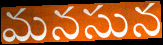
మనసున